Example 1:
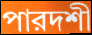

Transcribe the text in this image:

পারদশী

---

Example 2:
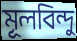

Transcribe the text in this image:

মূলবিন্দু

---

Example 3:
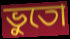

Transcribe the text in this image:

ভুতো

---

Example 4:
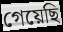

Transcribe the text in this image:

গেয়েছি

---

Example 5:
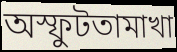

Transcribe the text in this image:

অস্ফুটতামাখা